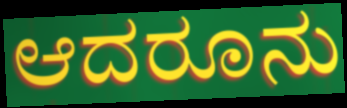
ಆದರೂನು